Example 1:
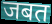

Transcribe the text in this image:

जबत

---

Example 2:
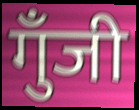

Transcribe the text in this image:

गुँजी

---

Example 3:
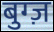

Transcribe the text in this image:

बुग्ज़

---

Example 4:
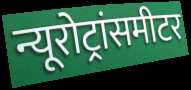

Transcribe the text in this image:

न्यूरोट्रांसमीटर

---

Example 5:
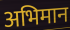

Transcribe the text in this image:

अभिमान